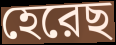
হেরেছ